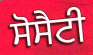
ਸੋਸੈਟੀ